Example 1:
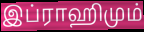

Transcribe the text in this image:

இப்ராஹிமும்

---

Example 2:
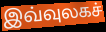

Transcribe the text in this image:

இவ்வுலகச்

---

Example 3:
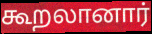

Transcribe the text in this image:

கூறலானார்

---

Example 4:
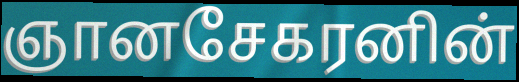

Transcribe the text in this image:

ஞானசேகரனின்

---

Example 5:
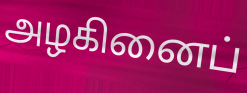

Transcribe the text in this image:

அழகினைப்